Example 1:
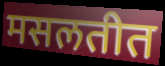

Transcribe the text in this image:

मसलतीत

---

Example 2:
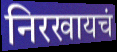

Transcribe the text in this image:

निरखायचं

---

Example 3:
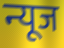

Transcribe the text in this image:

न्यूज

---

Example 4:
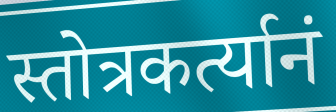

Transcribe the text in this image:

स्तोत्रकर्त्यानं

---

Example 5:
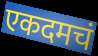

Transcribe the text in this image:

एकदमचं